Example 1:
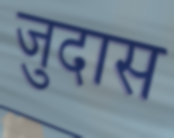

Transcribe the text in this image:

जुदास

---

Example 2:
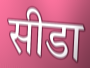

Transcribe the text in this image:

सीडा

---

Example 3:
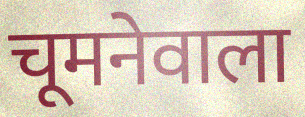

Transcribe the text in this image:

चूमनेवाला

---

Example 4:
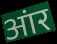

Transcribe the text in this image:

आंर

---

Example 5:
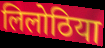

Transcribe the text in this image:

लिलोठिया